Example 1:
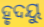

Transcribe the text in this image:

ହୃଦୟୁ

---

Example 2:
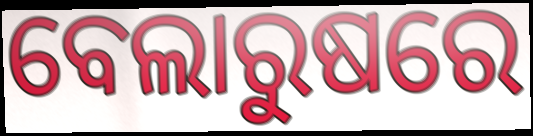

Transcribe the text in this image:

ବେଲାରୁଷରେ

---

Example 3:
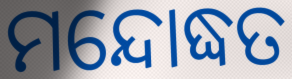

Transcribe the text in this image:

ମନ୍ଦୋଦ୍ଧତ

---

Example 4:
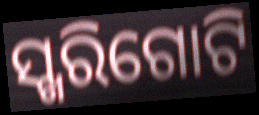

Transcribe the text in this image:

ସ୍ଖରିଗୋଟି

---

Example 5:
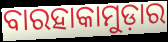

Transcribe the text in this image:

ବାରହାକାମୁଡ଼ାର